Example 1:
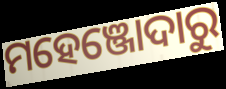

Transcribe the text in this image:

ମହେଞ୍ଜୋଦାରୁ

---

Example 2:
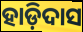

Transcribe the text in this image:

ହାଡ଼ିଦାସ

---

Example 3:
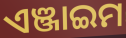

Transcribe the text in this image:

ଏଞ୍ଜାଇମ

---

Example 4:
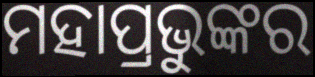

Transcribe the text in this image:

ମହାପ୍ରଭୁଙ୍କର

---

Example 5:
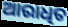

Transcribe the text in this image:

ଆରାଧିତ